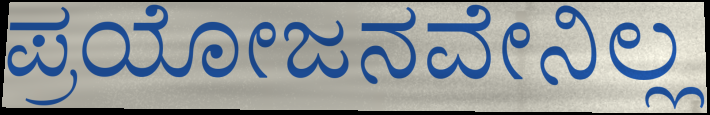
ಪ್ರಯೋಜನವೇನಿಲ್ಲ